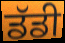
ਡੱਡੀ